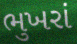
ભુખરાં